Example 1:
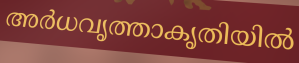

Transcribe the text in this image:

അർധവൃത്താകൃതിയിൽ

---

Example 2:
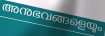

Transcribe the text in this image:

അനുഭവങ്ങളെയും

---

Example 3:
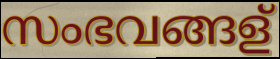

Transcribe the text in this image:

സംഭവങ്ങള്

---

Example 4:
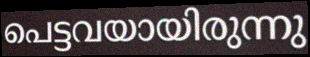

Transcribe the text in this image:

പെട്ടവയായിരുന്നു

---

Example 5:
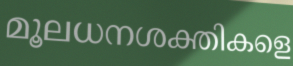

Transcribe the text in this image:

മൂലധനശക്തികളെ